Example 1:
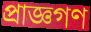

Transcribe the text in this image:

প্রাজ্ঞগণ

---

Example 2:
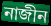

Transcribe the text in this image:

নাজীন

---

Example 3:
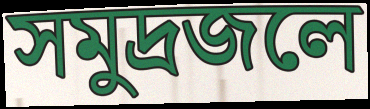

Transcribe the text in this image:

সমুদ্রজলে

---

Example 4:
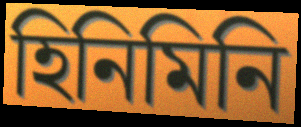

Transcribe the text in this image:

হিনিমিনি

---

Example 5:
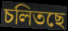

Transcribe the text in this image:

চলিতছে